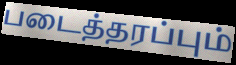
படைத்தரப்பும்